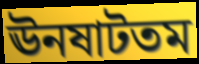
ঊনষাটতম